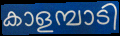
കാളമ്പാടി